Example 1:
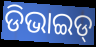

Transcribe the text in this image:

ଡିଭାଇଡ୍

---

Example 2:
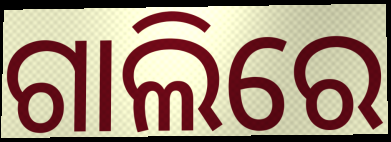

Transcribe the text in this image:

ଗାଲିରେ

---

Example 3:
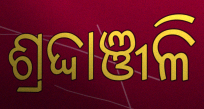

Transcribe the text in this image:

ଶ୍ରଦ୍ଦାଞ୍ଜଳି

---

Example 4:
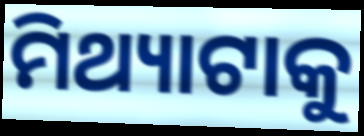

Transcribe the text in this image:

ମିଥ୍ୟାଟାକୁ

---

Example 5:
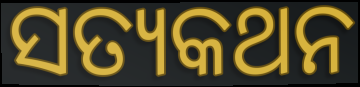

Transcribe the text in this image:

ସତ୍ୟକଥନ